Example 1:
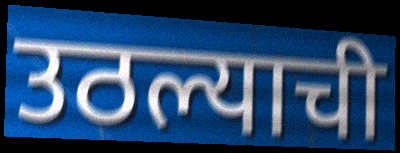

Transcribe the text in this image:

उठल्याची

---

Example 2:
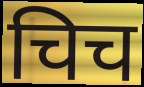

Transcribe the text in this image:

चिच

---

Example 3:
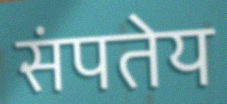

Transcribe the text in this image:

संपतेय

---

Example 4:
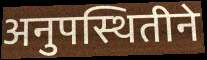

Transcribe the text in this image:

अनुपस्थितीने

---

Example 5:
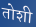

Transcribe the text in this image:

तोशी